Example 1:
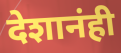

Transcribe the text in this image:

देशानंही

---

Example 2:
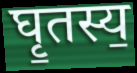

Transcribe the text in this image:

घृ॒तस्य॒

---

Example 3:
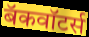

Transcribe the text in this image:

बॅकवॉटर्स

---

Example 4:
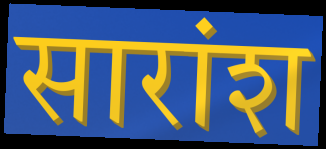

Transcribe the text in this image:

सारांश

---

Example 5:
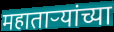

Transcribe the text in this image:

महाताऱ्यांच्या